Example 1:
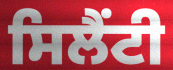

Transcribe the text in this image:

ਸਿਲੈਂਟੀ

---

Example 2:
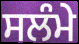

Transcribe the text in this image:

ਸਲੰਮੇ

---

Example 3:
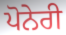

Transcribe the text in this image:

ਪੋਨੇਰੀ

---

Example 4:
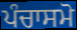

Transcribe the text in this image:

ਪੰਚਾਸਮੋ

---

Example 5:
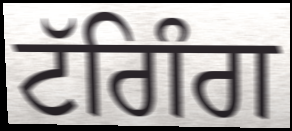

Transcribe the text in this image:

ਟੱਗਿੰਗ